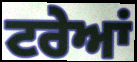
ਟਰੇਆਂ